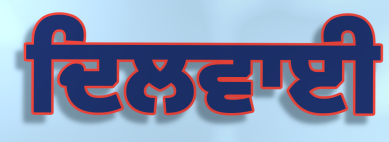
ਦਿਲਵਾਈ